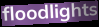
floodlights